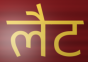
लैट